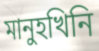
মানুহখিনি